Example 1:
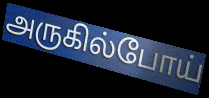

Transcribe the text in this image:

அருகில்போய்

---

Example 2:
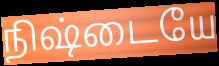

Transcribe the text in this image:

நிஷ்டையே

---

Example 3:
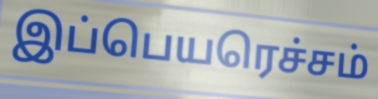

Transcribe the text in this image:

இப்பெயரெச்சம்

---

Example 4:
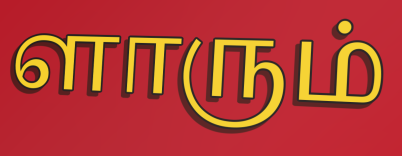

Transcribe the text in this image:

ளாரும்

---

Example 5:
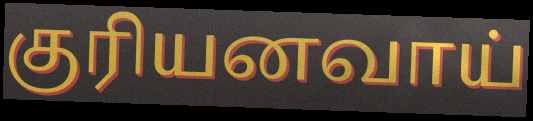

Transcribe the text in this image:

குரியனவாய்